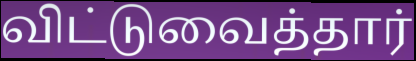
விட்டுவைத்தார்